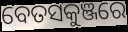
ବେତସକୁଞ୍ଜରେ